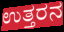
ಉತ್ತರನ